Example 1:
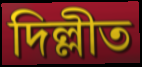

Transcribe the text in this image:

দিল্লীত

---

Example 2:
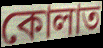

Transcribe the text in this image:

কোলাত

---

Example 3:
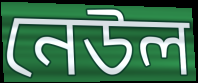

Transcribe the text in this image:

নেউল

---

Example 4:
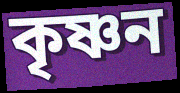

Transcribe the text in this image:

কৃষ্ণন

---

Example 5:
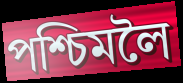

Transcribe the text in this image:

পশ্চিমলৈ